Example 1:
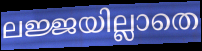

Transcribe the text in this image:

ലജ്ജയില്ലാതെ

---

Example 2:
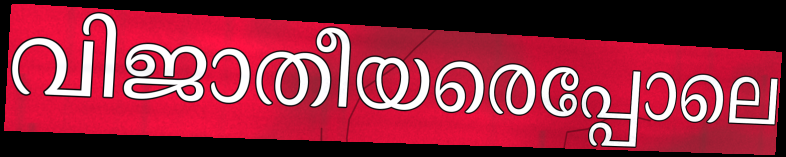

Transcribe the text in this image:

വിജാതീയരെപ്പോലെ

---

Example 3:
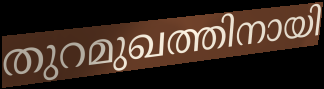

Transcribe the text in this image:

തുറമുഖത്തിനായി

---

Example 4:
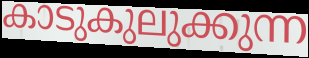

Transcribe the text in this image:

കാടുകുലുക്കുന്ന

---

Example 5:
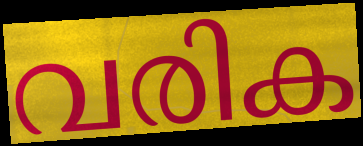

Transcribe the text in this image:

വരിക